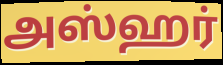
அஸ்ஹர்